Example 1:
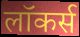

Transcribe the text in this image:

लॉकर्स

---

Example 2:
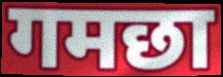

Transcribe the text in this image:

गमछा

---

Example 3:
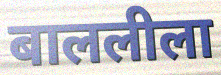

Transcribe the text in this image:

बाललीला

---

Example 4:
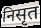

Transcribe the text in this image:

निसृत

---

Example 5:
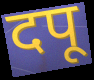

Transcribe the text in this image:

दपू